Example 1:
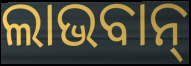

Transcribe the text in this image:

ଲାଭବାନ୍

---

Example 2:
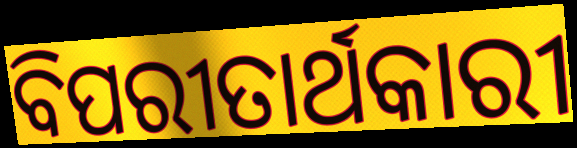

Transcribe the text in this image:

ବିପରୀତାର୍ଥକାରୀ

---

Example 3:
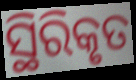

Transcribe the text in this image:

ସ୍ଥିରିକୃତ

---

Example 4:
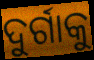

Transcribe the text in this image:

ଦୁର୍ଗାକୁ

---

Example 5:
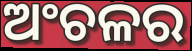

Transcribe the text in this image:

ଅଂଚଳର